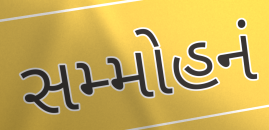
સમ્મોહનં